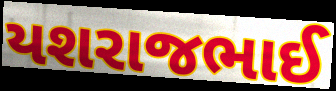
યશરાજભાઈ